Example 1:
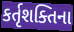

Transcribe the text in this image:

કર્તૃશક્તિના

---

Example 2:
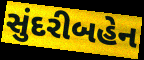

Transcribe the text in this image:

સુંદરીબહેન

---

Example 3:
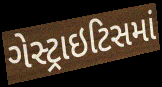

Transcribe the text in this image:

ગેસ્ટ્રાઇટિસમાં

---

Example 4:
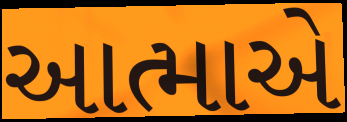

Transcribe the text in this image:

આત્માએ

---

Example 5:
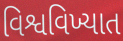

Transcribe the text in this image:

વિશ્વવિખ્યાત